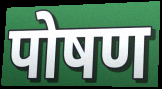
पोषण